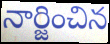
నార్జించిన